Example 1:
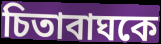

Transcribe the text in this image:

চিতাবাঘকে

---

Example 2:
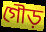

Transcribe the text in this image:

গৌড়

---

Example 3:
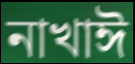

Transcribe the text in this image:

নাখাঈ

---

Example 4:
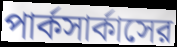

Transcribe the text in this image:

পার্কসার্কাসের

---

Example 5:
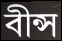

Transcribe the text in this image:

বীন্স